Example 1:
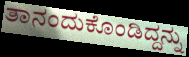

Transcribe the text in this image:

ತಾನಂದುಕೊಂಡಿದ್ದನ್ನು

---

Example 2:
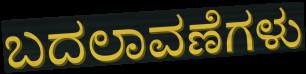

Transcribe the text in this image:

ಬದಲಾವಣೆಗಳು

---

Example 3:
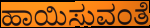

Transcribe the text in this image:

ಹಾಯಿಸುವಂತೆ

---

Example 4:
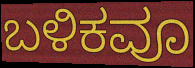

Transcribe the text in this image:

ಬಳಿಕವೂ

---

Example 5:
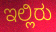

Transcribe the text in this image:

ಇಲ್ಲಿರು